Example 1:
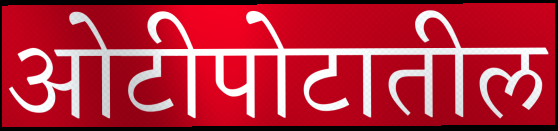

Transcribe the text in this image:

ओटीपोटातील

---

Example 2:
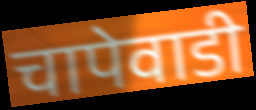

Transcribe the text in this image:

चापेवाडी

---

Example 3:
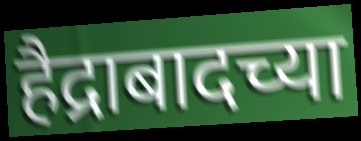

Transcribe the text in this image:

हैद्राबादच्या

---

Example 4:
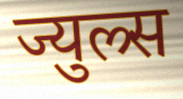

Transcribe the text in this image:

ज्युल्स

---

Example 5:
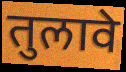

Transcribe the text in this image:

तुलावे